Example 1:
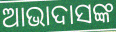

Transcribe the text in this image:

ଆଭାଦାସଙ୍କ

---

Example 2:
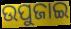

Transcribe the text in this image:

ଉପୁଜାଇ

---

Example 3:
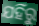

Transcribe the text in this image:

ଯହିଁରୁ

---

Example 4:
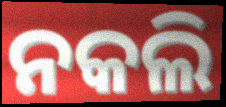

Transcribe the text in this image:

ନକଲି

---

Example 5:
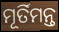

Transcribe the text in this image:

ମୂର୍ତିମନ୍ତ